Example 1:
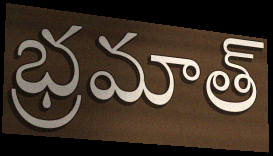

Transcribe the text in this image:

భ్రమాత్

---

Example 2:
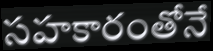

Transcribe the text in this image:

సహకారంతోనే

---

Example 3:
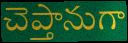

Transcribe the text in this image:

చెప్తానుగా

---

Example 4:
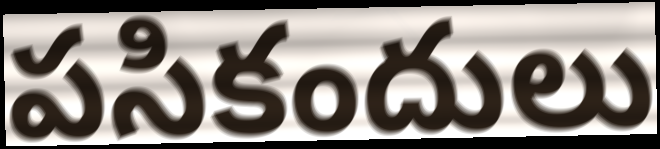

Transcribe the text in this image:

పసికందులు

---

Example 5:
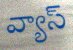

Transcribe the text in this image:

వ్యాస్